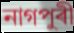
নাগপুৰী